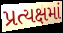
પ્રત્‍યક્ષમાં